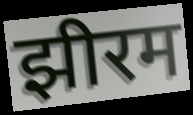
झीरम